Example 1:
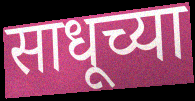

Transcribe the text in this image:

साधूच्या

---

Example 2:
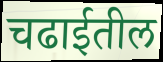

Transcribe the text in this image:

चढाईतील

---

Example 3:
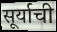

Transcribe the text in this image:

सूर्याची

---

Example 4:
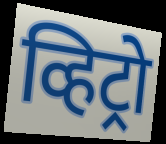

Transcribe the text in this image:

व्हिट्रो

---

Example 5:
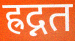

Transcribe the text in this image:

ह्रद्नत